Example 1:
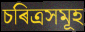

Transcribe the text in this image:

চৰিত্ৰসমূহ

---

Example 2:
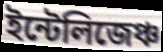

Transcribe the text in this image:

ইন্টেলিজেঞ্চ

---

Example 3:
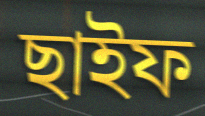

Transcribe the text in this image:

ছাইফ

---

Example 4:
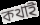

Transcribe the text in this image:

কথাই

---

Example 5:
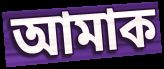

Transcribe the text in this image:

আমাক